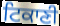
ਟਿਕਾਣੀ